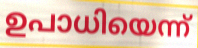
ഉപാധിയെന്ന്